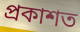
প্ৰকাশত